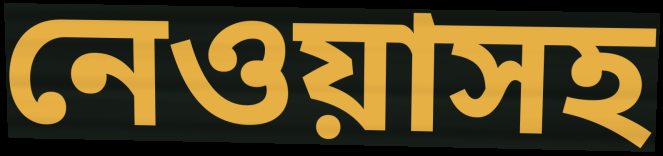
নেওয়াসহ